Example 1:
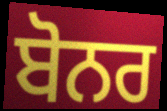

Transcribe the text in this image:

ਬੋਨਰ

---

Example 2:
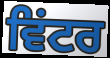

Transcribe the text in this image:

ਵਿਂਟਰ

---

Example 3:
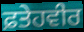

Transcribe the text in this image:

ਫ਼ਤੇਹਵੀਰ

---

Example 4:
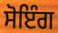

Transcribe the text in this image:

ਸੋਇੰਗ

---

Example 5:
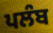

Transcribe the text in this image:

ਪਲੰਬ